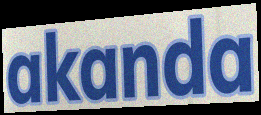
akanda